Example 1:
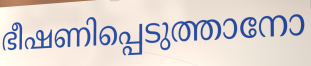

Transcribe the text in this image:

ഭീഷണിപ്പെടുത്താനോ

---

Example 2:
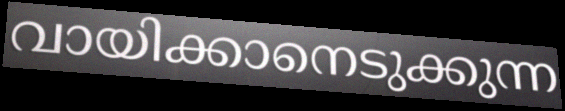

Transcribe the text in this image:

വായിക്കാനെടുക്കുന്ന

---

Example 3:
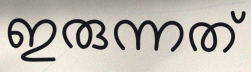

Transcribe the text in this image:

ഇരുന്നത്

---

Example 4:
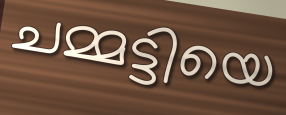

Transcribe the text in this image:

ചമ്മട്ടിയെ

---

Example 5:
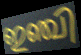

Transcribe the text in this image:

ഇഞ്ചി